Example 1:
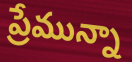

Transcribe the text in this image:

ప్రేమున్నా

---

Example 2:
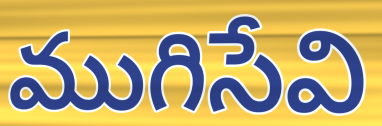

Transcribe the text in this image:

ముగిసేవి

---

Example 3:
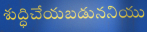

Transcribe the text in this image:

శుద్ధిచేయబడుననియు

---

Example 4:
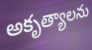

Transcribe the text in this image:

అకృత్యాలను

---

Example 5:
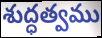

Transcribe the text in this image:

శుద్ధత్వము